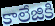
కాలేజికి